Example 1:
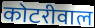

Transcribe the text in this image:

कोटरीवाल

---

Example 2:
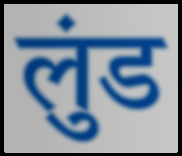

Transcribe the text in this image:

लुंड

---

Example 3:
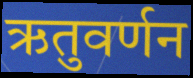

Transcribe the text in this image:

ऋतुवर्णन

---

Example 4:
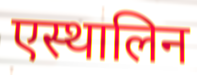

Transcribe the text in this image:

एस्थालिन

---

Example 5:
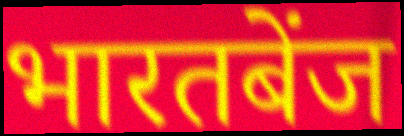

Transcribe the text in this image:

भारतबेंज